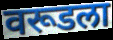
वरूडला